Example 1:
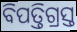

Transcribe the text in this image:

ବିପତ୍ତିଗ୍ରସ୍ତ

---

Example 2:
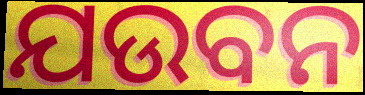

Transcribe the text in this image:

ଯଉବନ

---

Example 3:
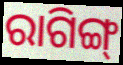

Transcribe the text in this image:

ରାଗିଙ୍ଗ୍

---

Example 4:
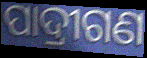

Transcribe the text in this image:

ପାଦ୍ରୀଗଣ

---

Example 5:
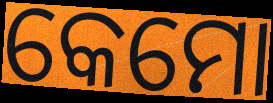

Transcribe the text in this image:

କେମୋ